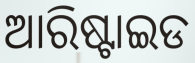
ଆରିଷ୍ଟାଇଡ